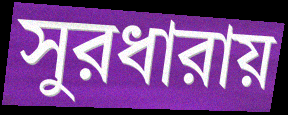
সুরধারায়